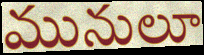
మునులూ